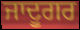
ਜਾਦੂਗਰ